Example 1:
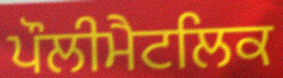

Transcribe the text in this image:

ਪੌਲੀਮੈਟਲਿਕ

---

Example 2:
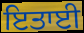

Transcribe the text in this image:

ਇਤਾਈ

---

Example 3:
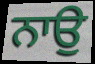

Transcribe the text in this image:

ਨਾਉ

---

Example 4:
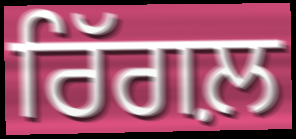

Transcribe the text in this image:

ਰਿੱਗਲ਼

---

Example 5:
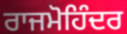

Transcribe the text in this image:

ਰਾਜਮੋਹਿੰਦਰ